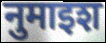
नुमाइश